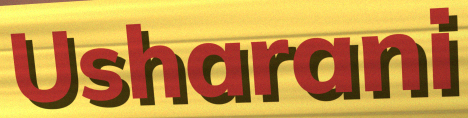
Usharani